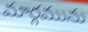
మార్గమును